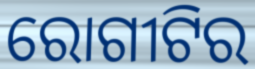
ରୋଗୀଟିର